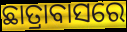
ଛାତ୍ରାବାସରେ